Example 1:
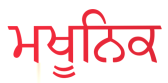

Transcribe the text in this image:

ਮਖੂਨਿਕ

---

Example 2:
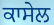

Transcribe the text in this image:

ਕਾਸੇਲ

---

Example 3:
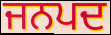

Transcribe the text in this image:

ਜਨਪਦ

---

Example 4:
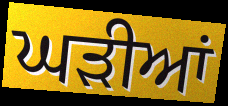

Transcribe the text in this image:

ਘੜੀਆਂ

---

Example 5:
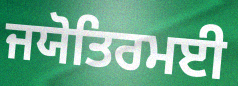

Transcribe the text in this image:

ਜਯੋਤਿਰਮਈ